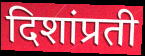
दिशांप्रती